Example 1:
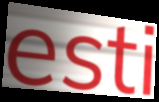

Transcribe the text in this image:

esti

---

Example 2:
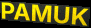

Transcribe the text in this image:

PAMUK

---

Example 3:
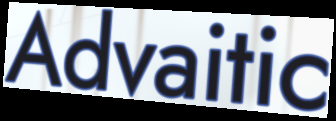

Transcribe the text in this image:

Advaitic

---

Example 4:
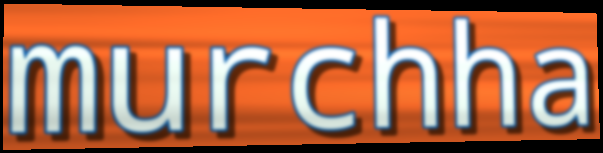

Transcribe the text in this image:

murchha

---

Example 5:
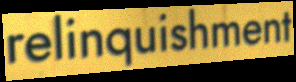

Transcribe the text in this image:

relinquishment